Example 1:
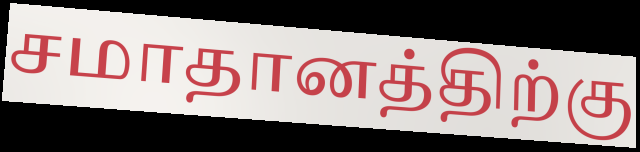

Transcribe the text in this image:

சமாதானத்திற்கு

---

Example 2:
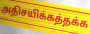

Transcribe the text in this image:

அதிசயிக்கத்தக்க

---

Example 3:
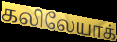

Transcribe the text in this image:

கலிலேயாக்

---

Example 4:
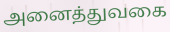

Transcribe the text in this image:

அனைத்துவகை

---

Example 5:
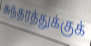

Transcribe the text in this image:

சுந்தரத்துக்குக்